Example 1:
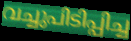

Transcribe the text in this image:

വച്ചുപിടിപ്പിച്ച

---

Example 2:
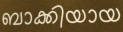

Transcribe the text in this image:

ബാക്കിയായ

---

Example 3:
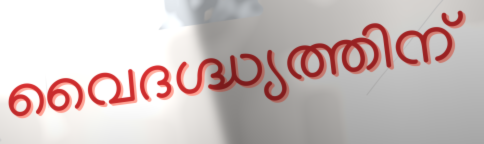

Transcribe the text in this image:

വൈദഗ്ദ്ധ്യത്തിന്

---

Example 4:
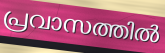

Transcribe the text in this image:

പ്രവാസത്തിൽ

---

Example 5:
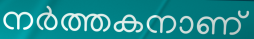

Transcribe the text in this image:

നർത്തകനാണ്